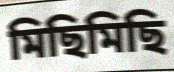
মিছিমিছি